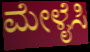
ಮೇಳೈಸಿ